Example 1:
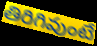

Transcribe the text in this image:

తిరిగివుంటే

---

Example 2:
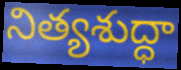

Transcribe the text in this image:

నిత్యశుద్ధా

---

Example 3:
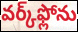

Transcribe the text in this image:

వర్క్‌ఫ్లోను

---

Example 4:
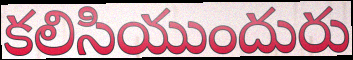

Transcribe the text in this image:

కలిసియుందురు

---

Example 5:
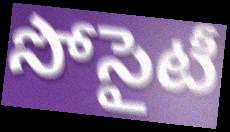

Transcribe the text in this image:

సోసైటీ